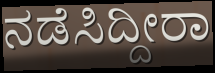
ನಡೆಸಿದ್ದೀರಾ